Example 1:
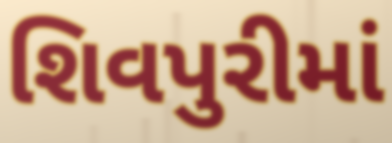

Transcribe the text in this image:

શિવપુરીમાં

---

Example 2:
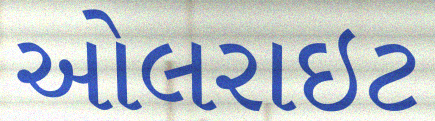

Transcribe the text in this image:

ઓલરાઇટ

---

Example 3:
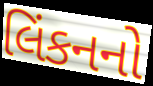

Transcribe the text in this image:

લિંકનનો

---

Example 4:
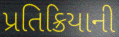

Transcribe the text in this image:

પ્રતિક્રિયાની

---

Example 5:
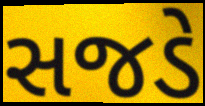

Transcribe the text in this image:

સજડે